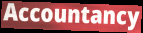
Accountancy